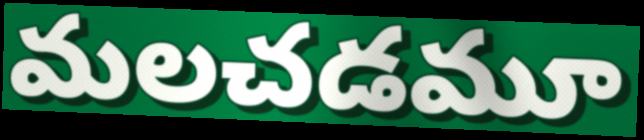
మలచడమూ